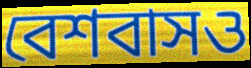
বেশবাসও